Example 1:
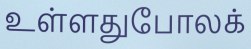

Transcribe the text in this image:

உள்ளதுபோலக்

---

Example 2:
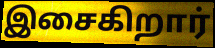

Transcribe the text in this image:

இசைகிறார்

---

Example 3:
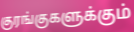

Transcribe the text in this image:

குரங்குகளுக்கும்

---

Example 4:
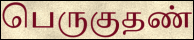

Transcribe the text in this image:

பெருகுதண்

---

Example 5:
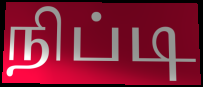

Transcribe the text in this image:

நிப்டி